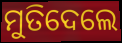
ମୁତିଦେଲେ